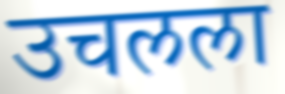
उचलला